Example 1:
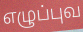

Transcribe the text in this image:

எழுப்புவ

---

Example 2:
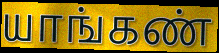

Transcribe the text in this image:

யாங்கண்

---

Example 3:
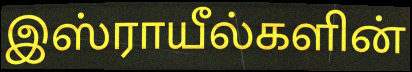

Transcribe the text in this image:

இஸ்ராயீல்களின்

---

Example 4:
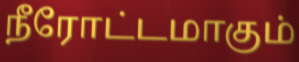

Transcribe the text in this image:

நீரோட்டமாகும்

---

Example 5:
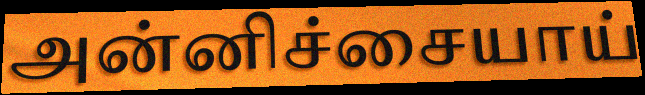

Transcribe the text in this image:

அன்னிச்சையாய்